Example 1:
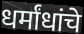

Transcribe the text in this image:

धर्मांधांचे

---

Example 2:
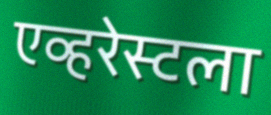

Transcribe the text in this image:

एव्हरेस्टला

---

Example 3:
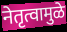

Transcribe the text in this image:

नेतृत्वामुळे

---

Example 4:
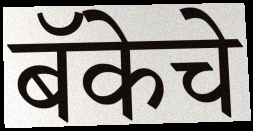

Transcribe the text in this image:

बॅकेचे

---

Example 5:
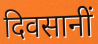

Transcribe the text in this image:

दिवसानीं